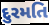
દુરમતિ